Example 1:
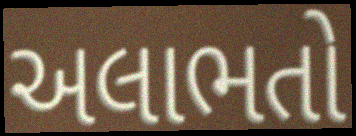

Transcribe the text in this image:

અલાભતો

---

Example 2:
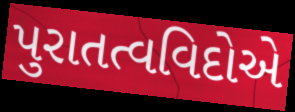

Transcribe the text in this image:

પુરાતત્વવિદોએ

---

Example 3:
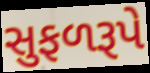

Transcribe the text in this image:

સુફળરૂપે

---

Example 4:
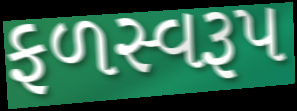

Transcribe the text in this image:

ફળસ્વરૂપ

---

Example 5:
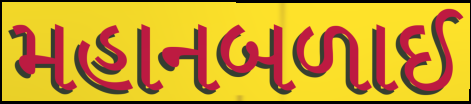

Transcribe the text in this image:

મહાનબળાઈ